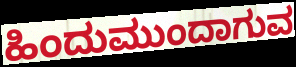
ಹಿಂದುಮುಂದಾಗುವ